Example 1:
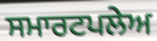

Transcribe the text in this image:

ਸਮਾਰਟਪਲੇਅ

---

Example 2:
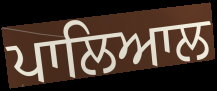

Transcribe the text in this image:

ਪਾਲਿਆਲ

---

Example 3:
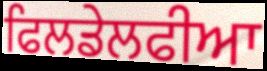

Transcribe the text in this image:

ਫਿਲਡੇਲਫੀਆ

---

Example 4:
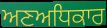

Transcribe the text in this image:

ਅਣਅਧਿਕਾਰ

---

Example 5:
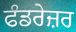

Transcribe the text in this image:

ਫੰਡਰੇਜ਼ਰ